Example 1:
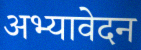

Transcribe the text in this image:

अभ्यावेदन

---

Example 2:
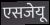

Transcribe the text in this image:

एसजेयू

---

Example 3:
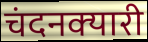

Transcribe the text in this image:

चंदनक्यारी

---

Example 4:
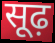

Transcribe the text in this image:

सूढ़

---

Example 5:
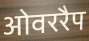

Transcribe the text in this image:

ओवररैप